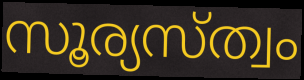
സൂര്യസ്ത്വം